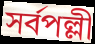
সর্বপল্লী